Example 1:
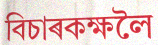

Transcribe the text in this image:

বিচাৰকক্ষলৈ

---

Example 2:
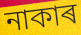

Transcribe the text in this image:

নাকাৰ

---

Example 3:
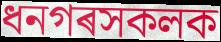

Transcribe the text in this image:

ধনগৰসকলক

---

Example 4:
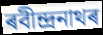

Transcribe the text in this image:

ৰবীন্দ্ৰনাথৰ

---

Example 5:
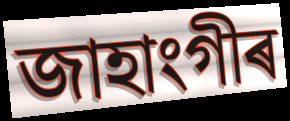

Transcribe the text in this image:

জাহাংগীৰ